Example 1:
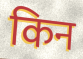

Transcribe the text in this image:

किन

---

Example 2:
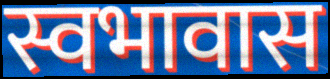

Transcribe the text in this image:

स्वभावास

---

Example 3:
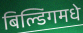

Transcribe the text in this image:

बिल्डिंगमधे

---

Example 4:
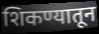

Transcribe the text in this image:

शिकण्यातून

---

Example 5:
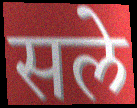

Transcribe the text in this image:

सले